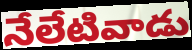
నేలేటివాడు